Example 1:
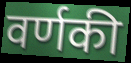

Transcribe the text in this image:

वर्णकी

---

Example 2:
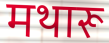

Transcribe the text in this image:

मथारू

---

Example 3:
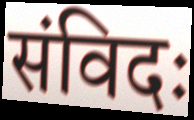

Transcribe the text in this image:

संविदः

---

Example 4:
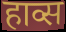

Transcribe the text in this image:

हाव्स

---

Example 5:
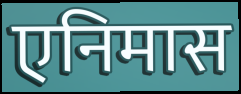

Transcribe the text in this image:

एनिमास